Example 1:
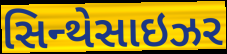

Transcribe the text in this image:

સિન્થેસાઇઝર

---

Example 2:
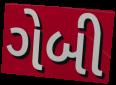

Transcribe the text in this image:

ગેબી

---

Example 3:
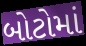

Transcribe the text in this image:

બોટોમાં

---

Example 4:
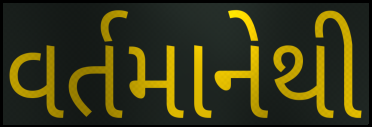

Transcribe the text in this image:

વર્તમાનેથી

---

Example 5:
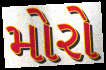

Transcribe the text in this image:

મોરો